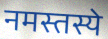
नमस्तस्ये